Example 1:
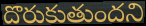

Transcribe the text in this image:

దొరుకుతుందని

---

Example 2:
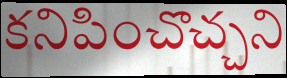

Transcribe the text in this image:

కనిపించొచ్చని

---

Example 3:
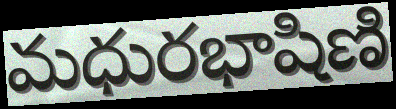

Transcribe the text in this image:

మధురభాషిణి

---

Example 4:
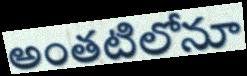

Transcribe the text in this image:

అంతటిలోనూ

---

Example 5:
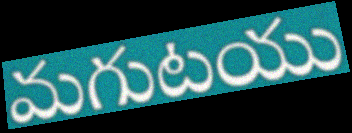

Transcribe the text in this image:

మగుటయు